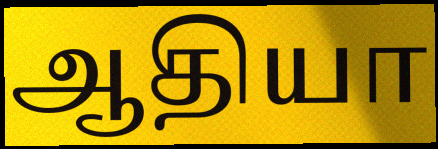
ஆதியா